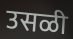
उसळी